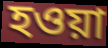
হওয়া